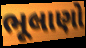
ભૂલાણો